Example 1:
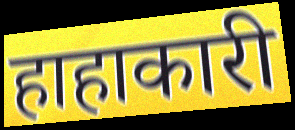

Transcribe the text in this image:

हाहाकारी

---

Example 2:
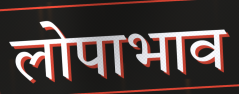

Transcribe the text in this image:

लोपाभाव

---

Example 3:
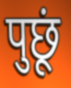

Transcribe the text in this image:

पुछूं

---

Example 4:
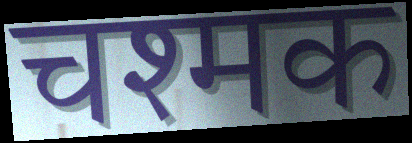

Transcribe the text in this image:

चश्मक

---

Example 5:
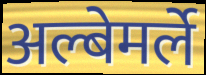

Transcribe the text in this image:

अल्बेमर्ले